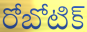
రోబోటిక్